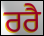
ਰਰੈ